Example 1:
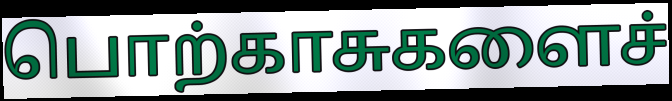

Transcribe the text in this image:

பொற்காசுகளைச்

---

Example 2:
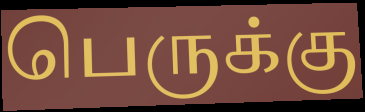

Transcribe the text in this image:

பெருக்கு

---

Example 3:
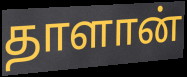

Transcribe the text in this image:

தாளான்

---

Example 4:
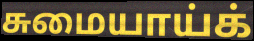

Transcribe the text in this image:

சுமையாய்க்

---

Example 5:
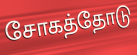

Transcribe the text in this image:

சோகத்தோடு